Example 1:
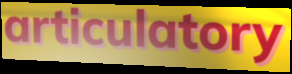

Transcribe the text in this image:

articulatory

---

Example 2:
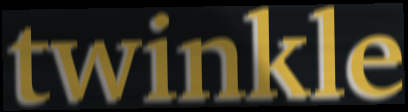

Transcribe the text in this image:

twinkle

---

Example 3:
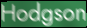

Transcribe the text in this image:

Hodgson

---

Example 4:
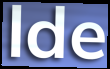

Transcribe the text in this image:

lde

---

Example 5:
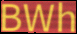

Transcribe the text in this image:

BWh